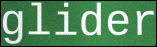
glider